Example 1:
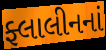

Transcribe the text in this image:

ફ્લાલીનનાં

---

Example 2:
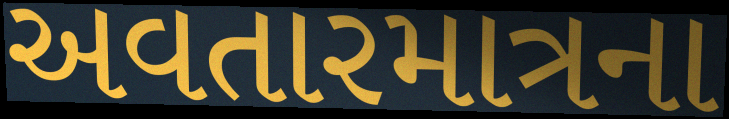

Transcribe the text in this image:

અવતારમાત્રના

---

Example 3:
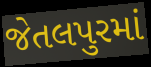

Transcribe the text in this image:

જેતલપુરમાં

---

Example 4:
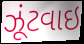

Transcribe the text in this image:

ઝૂંટવાઇ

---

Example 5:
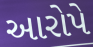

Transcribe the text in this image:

આરોપે